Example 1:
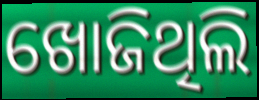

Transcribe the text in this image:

ଖୋଜିଥିଲି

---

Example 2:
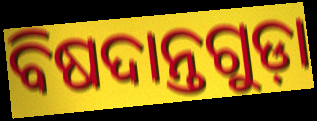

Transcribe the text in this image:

ବିଷଦାନ୍ତଗୁଡ଼ା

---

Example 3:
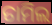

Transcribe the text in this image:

ତାମିଲ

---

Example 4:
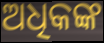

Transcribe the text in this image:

ଅଧିକଙ୍କ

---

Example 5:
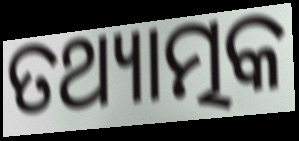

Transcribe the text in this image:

ତଥ୍ୟାତ୍ମକ